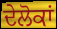
ਦੇਲੋਕਾਂ